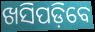
ଖସିପଡ଼ିବେ